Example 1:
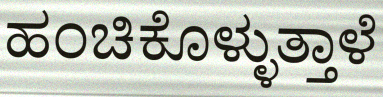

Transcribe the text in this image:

ಹಂಚಿಕೊಳ್ಳುತ್ತಾಳೆ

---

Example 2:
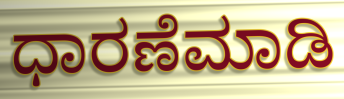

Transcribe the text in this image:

ಧಾರಣೆಮಾಡಿ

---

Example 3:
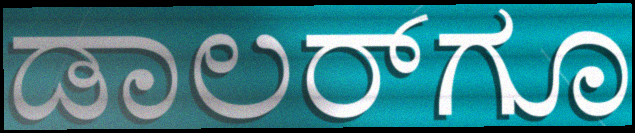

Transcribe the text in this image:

ಡಾಲರ್‌ಗೂ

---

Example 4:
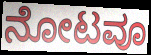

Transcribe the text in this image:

ನೋಟವೂ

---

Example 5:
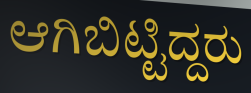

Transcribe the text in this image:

ಆಗಿಬಿಟ್ಟಿದ್ದರು